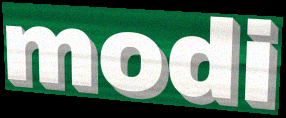
modi